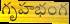
గృహభంగ